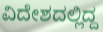
ವಿದೇಶದಲ್ಲಿದ್ದ